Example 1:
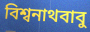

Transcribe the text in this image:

বিশ্বনাথবাবু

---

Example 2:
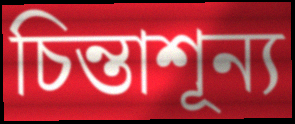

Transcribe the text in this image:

চিন্তাশূন্য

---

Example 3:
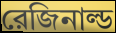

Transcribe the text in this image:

রেজিনাল্ড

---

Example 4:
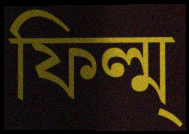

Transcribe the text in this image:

ফিল্ম্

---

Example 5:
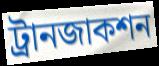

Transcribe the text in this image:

ট্রানজাকশন